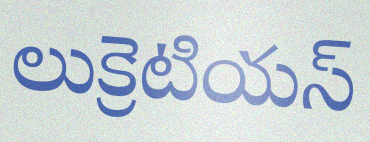
లుక్రెటియస్